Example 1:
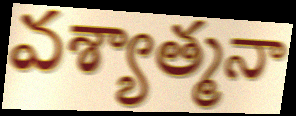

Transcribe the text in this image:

వశ్యాత్మనా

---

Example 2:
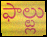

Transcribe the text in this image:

ఫాల్ట్లు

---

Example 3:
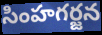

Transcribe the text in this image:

సింహగర్జన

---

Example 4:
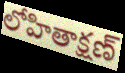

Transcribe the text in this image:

లోహితాక్షణ్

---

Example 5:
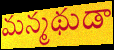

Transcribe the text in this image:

మన్మథుడా